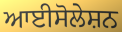
ਆਈਸੋਲੇਸ਼ਨ